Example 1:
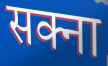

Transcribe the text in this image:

सक्ना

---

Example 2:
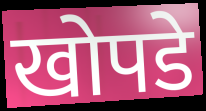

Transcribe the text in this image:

खोपडे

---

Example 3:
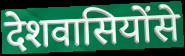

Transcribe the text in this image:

देशवासियोंसे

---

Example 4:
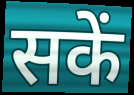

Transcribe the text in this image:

सकें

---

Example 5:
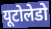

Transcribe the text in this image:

यूटोलेडो